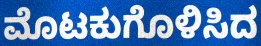
ಮೊಟಕುಗೊಳಿಸಿದ